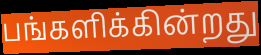
பங்களிக்கின்றது